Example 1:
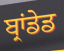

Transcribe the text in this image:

ਬ੍ਰਾਂਡੇਡ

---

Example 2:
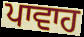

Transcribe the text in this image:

ਪਾਵਾਹ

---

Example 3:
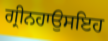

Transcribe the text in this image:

ਗ੍ਰੀਨਹਾਉਸਇਹ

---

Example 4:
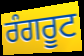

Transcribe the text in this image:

ਰੰਗਰੂਟ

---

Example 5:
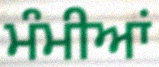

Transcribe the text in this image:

ਮੰਮੀਆਂ